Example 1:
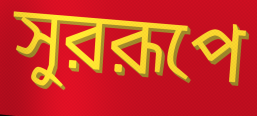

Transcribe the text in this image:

সুররূপে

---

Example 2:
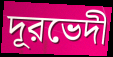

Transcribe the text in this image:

দূরভেদী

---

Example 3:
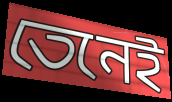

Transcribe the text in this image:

তেনেই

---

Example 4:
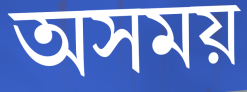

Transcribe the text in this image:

অসময়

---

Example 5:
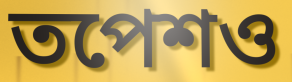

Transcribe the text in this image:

তপেশও